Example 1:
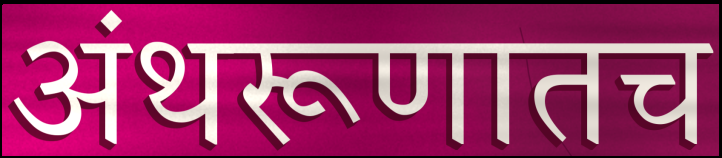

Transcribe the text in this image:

अंथरूणातच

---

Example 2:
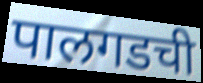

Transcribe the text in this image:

पालगडची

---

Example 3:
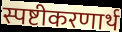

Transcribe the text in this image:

स्पष्टीकरणार्थ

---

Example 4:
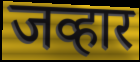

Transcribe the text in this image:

जव्हार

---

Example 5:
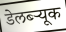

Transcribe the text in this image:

डेलब्ऱ्यूक